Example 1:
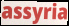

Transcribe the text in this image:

assyria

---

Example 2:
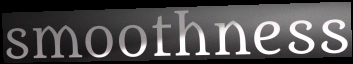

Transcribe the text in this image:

smoothness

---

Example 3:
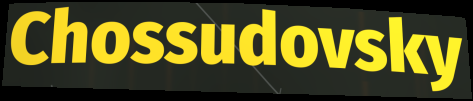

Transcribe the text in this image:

Chossudovsky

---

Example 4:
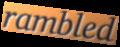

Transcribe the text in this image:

rambled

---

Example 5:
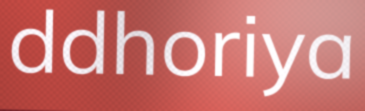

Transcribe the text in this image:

ddhoriya